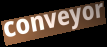
conveyor